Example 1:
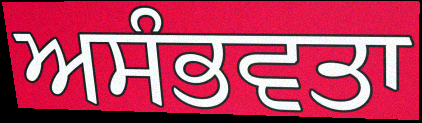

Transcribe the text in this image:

ਅਸੰਭਵਤਾ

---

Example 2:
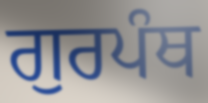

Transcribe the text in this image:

ਗੁਰਪੰਥ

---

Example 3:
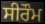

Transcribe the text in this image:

ਸੀਰੌਮ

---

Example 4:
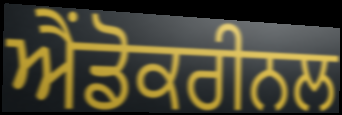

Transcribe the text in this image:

ਐਂਡੋਕਰੀਨਲ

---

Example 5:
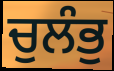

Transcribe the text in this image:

ਚੁਲੰਭੁ